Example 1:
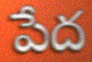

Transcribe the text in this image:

పేద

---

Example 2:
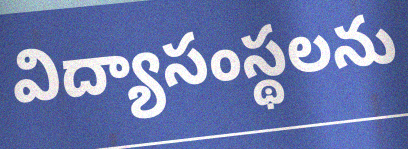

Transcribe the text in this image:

విద్యాసంస్థలను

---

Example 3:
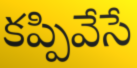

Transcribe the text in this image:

కప్పివేసే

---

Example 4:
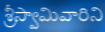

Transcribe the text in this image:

శ్రీస్వామివారిని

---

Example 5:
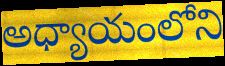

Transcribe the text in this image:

అధ్యాయంలోని